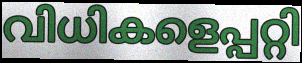
വിധികളെപ്പറ്റി